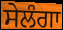
ਸੇਲੰਗਾ